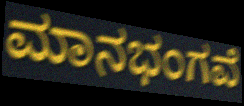
ಮಾನಭಂಗವೆ